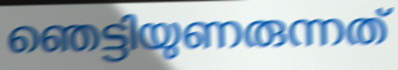
ഞെട്ടിയുണരുന്നത്